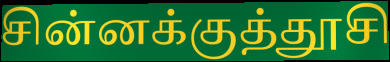
சின்னக்குத்தூசி